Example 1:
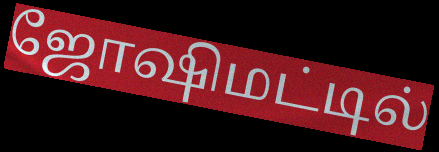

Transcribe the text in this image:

ஜோஷிமட்டில்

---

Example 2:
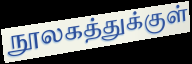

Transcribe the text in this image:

நூலகத்துக்குள்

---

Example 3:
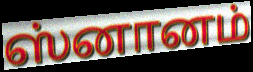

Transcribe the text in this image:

ஸ்னானம்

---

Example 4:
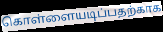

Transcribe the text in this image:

கொள்ளையடிப்பதற்காக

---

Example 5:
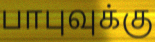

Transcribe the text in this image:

பாபுவுக்கு